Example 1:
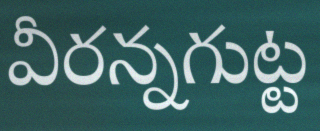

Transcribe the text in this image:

వీరన్నగుట్ట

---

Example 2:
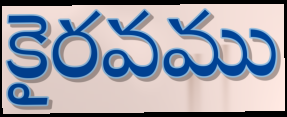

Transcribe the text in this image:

కైరవము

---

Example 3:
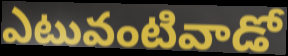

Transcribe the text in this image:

ఎటువంటివాడో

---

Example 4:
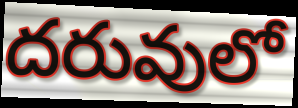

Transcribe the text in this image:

దరువులో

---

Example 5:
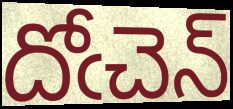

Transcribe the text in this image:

దోఁచెన్